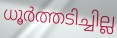
ധൂർത്തടിച്ചില്ല